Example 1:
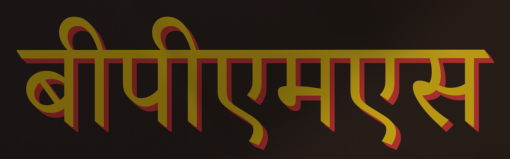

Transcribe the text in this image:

बीपीएमएस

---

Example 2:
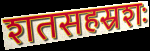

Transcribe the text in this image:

शतसहस्रशः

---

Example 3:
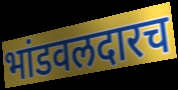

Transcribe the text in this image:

भांडवलदारच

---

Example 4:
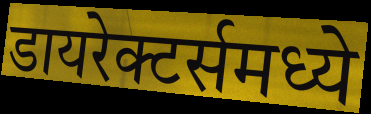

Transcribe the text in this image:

डायरेक्टर्समध्ये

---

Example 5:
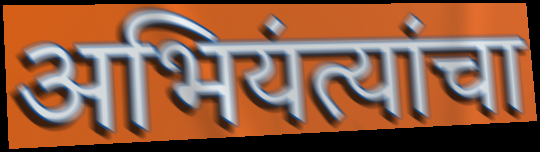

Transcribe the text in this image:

अभियंत्यांचा